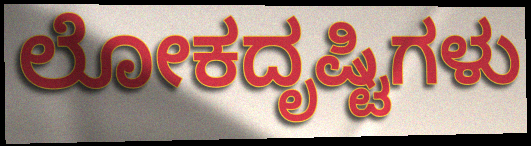
ಲೋಕದೃಷ್ಟಿಗಳು